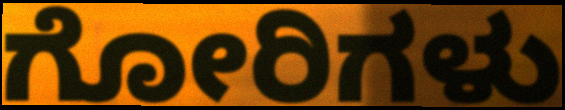
ಗೋರಿಗಳು